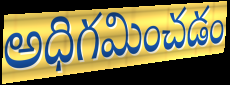
అధిగమించడం